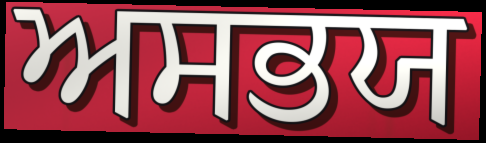
ਅਸਭਯ